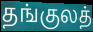
தங்குலத்